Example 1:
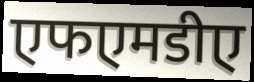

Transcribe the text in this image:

एफएमडीए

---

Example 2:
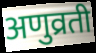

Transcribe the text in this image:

अणुव्रती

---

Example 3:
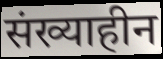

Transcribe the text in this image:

संख्याहीन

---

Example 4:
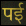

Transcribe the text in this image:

पई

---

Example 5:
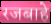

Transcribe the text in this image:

रजबाहे